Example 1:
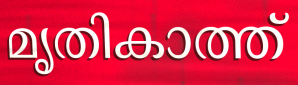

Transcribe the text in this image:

മൃതികാത്ത്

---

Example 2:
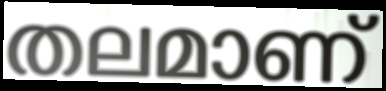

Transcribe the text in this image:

തലമാണ്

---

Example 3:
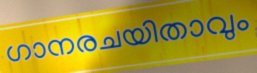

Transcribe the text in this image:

ഗാനരചയിതാവും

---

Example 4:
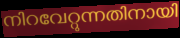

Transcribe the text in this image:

നിറവേറ്റുന്നതിനായി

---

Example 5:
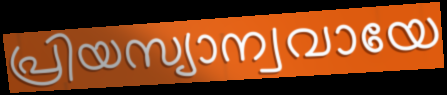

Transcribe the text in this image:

പ്രിയസ്യാന്വവായേ